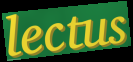
lectus